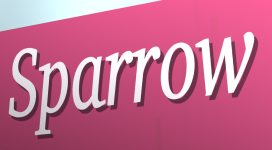
Sparrow